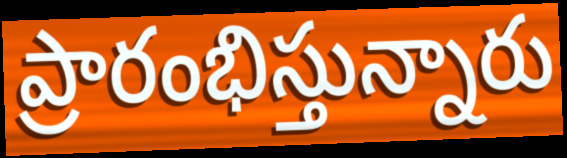
ప్రారంభిస్తున్నారు